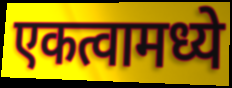
एकत्वामध्ये